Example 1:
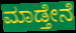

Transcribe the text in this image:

ಮಾಡ್ತೇನೆ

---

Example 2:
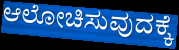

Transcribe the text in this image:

ಆಲೋಚಿಸುವುದಕ್ಕೆ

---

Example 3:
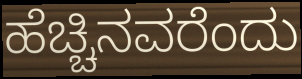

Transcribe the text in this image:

ಹೆಚ್ಚಿನವರೆಂದು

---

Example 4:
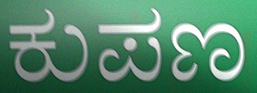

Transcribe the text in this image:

ಕುಪಣ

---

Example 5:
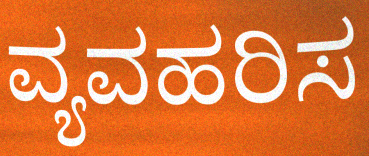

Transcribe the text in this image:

ವ್ಯವಹರಿಸ